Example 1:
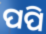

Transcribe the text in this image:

ପପି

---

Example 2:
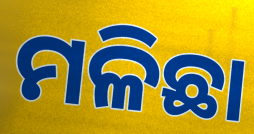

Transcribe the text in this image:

ମଳିଛା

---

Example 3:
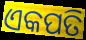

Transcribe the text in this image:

ଏକପତି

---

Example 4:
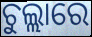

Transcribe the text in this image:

ଚୁଲ୍ଲାରେ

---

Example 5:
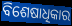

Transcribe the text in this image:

ବିଶେଷାଧିକାର